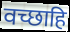
वच्छाहि